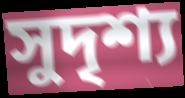
সুদৃশ্য